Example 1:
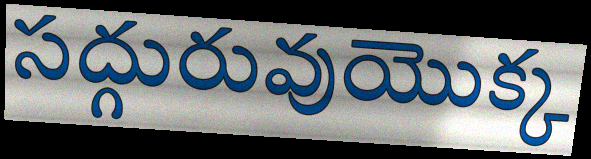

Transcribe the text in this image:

సద్గురువుయొక్క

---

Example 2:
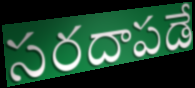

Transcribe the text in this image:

సరదాపడే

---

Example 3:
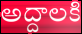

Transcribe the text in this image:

అద్దాలకి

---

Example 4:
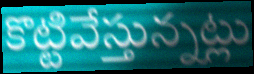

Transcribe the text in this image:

కొట్టివేస్తున్నట్లు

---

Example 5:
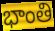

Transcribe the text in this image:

భాంతి